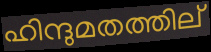
ഹിന്ദുമതത്തില്